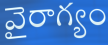
వైరాగ్యం